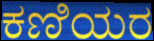
ಕಣಿಯರ